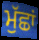
ਮੁੱਛਾਂ